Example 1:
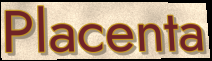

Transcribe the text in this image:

Placenta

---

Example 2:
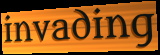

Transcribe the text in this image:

invading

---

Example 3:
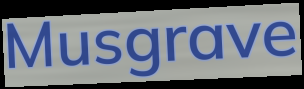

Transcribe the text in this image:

Musgrave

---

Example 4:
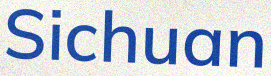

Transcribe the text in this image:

Sichuan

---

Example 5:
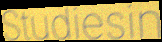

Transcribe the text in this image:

Studiesin